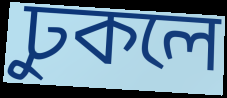
ঢুকলে